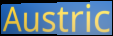
Austric